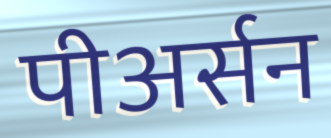
पीअर्सन